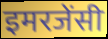
इमरजेंसी